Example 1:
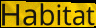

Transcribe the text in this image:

Habitat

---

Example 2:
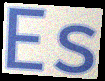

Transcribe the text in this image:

Es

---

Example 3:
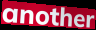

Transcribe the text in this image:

another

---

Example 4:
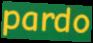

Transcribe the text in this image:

pardo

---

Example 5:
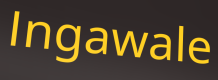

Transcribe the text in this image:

Ingawale